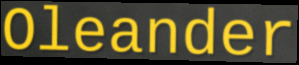
Oleander